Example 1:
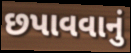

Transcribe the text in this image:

છપાવવાનું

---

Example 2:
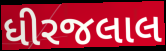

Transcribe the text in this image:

ધીરજલાલ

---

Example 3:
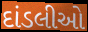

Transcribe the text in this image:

દાંડલીઓ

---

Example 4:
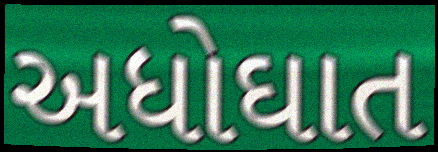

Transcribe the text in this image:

અધોઘાત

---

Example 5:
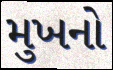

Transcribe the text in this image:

મુખનો